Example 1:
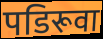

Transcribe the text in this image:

पडिरूवा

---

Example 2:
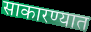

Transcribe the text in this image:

साकारण्यात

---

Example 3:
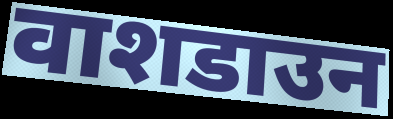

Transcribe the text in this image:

वाशडाउन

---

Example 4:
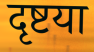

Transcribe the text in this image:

दृष्टया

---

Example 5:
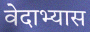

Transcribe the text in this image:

वेदाभ्यास